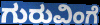
ಗುರುವಿಂಗೆ